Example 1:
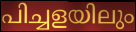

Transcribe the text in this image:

പിച്ചളയിലും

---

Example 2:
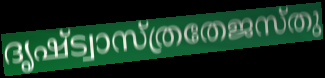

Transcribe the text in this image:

ദൃഷ്ട്വാസ്ത്രതേജസ്തു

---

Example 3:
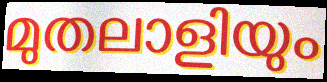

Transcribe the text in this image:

മുതലാളിയും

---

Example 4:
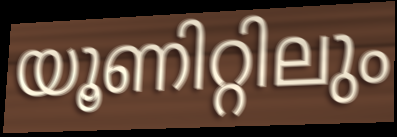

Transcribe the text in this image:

യൂണിറ്റിലും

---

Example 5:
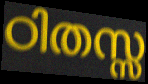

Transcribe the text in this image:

ഠിതസ്സ